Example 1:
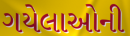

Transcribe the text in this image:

ગયેલાઓની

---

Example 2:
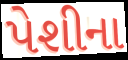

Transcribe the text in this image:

પેશીના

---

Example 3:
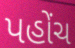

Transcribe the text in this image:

પહોંચ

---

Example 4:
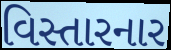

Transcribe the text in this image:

વિસ્તારનાર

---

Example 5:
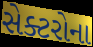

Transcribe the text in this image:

સેક્ટરોના